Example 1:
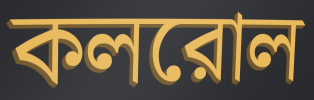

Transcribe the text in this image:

কলরোল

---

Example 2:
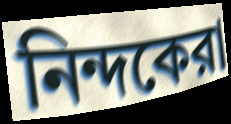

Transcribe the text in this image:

নিন্দকেরা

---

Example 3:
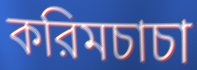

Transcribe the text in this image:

করিমচাচা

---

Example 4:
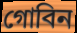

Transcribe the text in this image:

গোবিন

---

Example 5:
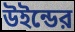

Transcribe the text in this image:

উইন্ডের